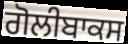
ਗੋਲੀਬਾਕਸ